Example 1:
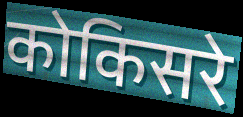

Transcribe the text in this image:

कोकिसरे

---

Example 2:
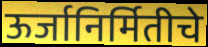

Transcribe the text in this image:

ऊर्जानिर्मितीचे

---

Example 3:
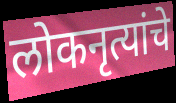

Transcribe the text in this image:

लोकनृत्यांचे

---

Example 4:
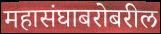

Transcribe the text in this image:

महासंघाबरोबरील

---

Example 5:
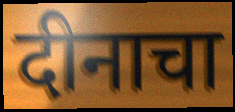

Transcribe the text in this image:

दीनाचा